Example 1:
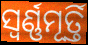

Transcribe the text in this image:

ସ୍ଵର୍ଣ୍ଣମୂର୍ତ୍ତି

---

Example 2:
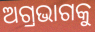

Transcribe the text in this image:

ଅଗ୍ରଭାଗକୁ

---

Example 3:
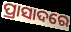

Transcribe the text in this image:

ପ୍ରାସାଦରେ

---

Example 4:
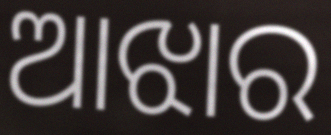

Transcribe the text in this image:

ଆଝାର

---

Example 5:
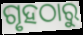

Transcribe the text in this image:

ଗୃହଠାରୁ